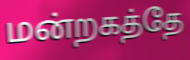
மன்றகத்தே